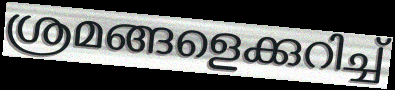
ശ്രമങ്ങളെക്കുറിച്ച്